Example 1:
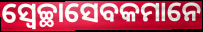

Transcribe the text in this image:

ସ୍ୱେଚ୍ଛାସେବକମାନେ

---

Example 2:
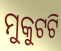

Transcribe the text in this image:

ମୁକୁଟଟି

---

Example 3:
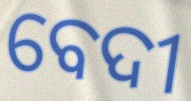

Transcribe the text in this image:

ବେଦୀ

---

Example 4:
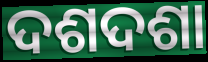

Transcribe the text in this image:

ଦଶଦଶା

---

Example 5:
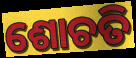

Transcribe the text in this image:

ଶୋଚତି